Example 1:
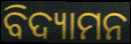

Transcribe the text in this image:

ବିଦ୍ୟାମନ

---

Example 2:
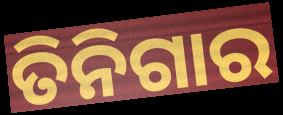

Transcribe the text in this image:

ତିନିଗାର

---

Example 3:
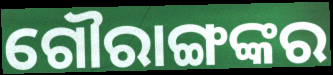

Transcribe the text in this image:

ଗୌରାଙ୍ଗଙ୍କର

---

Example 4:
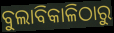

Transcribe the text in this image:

ବୁଲାବିକାଳିଠାରୁ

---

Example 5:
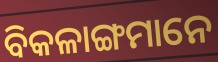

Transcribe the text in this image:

ବିକଳାଙ୍ଗମାନେ